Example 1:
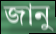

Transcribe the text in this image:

জানু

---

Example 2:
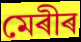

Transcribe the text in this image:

মেৰীৰ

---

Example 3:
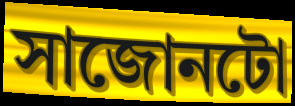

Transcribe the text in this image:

সাজোনটো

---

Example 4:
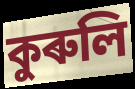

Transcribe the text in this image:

কুৰুলি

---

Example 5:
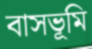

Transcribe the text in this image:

বাসভূমি